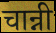
चान्नी